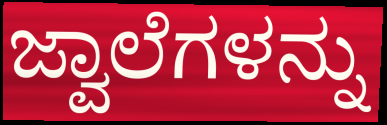
ಜ್ವಾಲೆಗಳನ್ನು